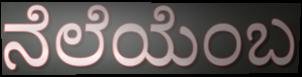
ನೆಲೆಯೆಂಬ